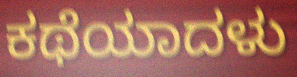
ಕಥೆಯಾದಳು